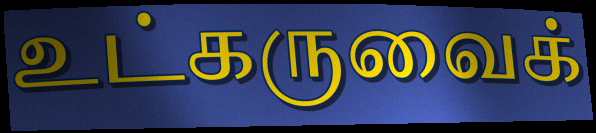
உட்கருவைக்